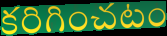
కరిగించటం